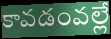
కావడంవల్లే